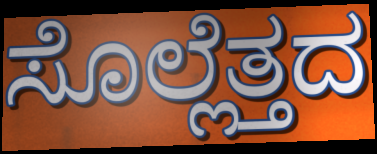
ಸೊಲ್ಲೆತ್ತದ